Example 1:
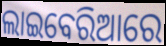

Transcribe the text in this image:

ଲାଇବେରିଆରେ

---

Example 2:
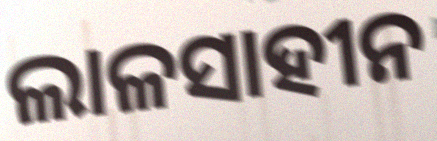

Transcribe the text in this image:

ଲାଳସାହୀନ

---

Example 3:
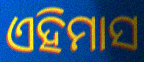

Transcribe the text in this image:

ଏହିମାସ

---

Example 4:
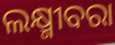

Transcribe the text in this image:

ଲକ୍ଷ୍ମୀବରା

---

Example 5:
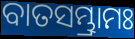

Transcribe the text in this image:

ବାତସମ୍ଭ୍ରାମଃ